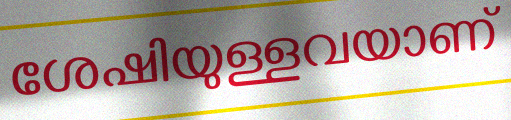
ശേഷിയുള്ളവയാണ്